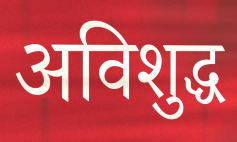
अविशुद्ध